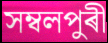
সম্বলপুৰী